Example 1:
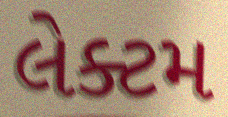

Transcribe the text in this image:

લેક્ટમ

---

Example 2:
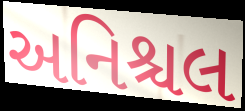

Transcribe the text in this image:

અનિશ્ચલ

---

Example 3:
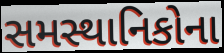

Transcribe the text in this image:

સમસ્થાનિકોના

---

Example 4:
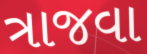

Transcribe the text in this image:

ત્રાજવા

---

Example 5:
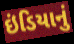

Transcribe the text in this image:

ઇંડિયાનું